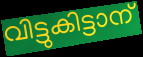
വിട്ടുകിട്ടാന്